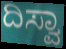
ದಿಸ್ವಾ